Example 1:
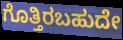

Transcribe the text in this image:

ಗೊತ್ತಿರಬಹುದೇ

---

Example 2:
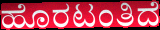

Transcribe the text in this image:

ಹೊರಟಂತಿದೆ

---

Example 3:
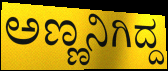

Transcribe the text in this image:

ಅಣ್ಣನಿಗಿದ್ದ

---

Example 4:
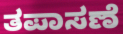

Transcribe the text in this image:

ತಪಾಸಣೆ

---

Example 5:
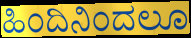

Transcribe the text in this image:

ಹಿಂದಿನಿಂದಲೂ